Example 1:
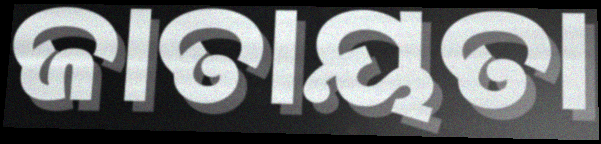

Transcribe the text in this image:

ଜାତାୟତା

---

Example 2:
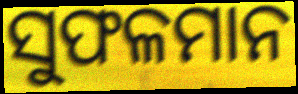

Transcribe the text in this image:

ସୁଫଳମାନ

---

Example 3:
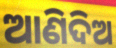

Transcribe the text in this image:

ଆଣିଦିଅ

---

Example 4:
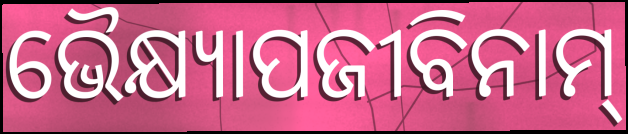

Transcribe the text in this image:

ଭୈକ୍ଷ୍ୟାପଜୀବିନାମ୍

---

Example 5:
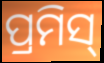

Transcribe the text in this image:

ପ୍ରମିସ୍